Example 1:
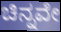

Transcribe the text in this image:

ಚಿನ್ನವೇ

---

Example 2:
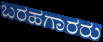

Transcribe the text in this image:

ಬರಹಗಾರರು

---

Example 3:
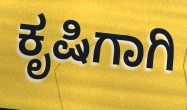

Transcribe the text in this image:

ಕೃಷಿಗಾಗಿ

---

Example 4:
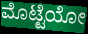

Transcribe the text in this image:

ಮೊಟ್ಟೆಯೋ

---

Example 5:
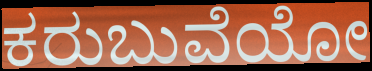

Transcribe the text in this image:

ಕರುಬುವೆಯೋ